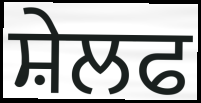
ਸ਼ੇਲਫ